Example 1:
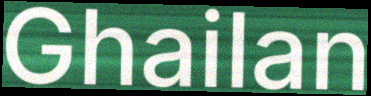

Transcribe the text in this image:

Ghailan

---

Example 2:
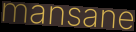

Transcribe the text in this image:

mansane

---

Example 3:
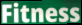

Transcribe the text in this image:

Fitness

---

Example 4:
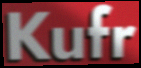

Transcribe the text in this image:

Kufr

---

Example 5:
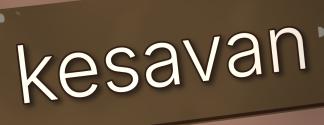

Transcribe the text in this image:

kesavan